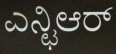
ಎನ್ಟಿಆರ್